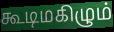
கூடிமகிழும்